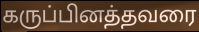
கருப்பினத்தவரை